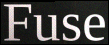
Fuse